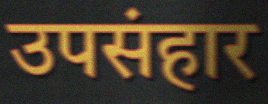
उपसंहार